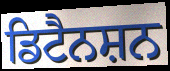
ਡਿਟੈਨਸ਼ਨ